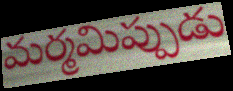
మర్మమిప్పుడు